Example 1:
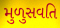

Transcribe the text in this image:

મુળુસવતિ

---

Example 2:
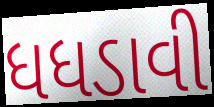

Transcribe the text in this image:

ધધડાવી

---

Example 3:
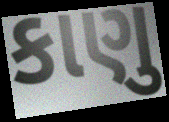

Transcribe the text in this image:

કાણુ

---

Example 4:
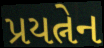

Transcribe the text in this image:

પ્રયત્નેન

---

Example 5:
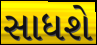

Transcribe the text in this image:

સાધશે